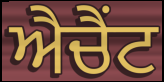
ਐਚੈਂਟ